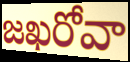
జఖరోవా